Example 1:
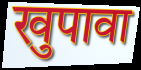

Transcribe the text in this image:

खुपावा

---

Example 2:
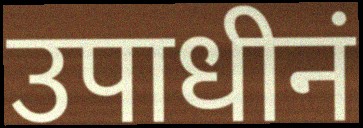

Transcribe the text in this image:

उपाधीनं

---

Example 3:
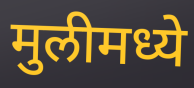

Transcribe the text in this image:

मुलीमध्ये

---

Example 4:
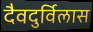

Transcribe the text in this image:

दैवदुर्विलास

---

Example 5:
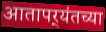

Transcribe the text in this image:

आतापर्यंतच्या